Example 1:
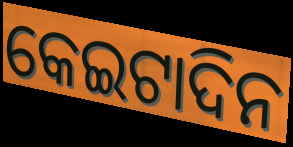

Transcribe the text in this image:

କେଇଟାଦିନ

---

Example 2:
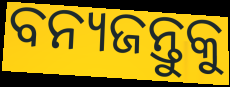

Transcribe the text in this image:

ବନ୍ୟଜନ୍ତୁକୁ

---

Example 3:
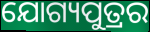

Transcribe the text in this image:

ଯୋଗ୍ୟପୁତ୍ରର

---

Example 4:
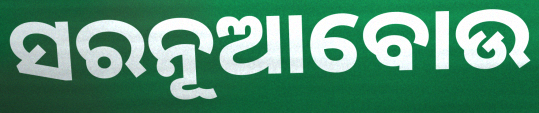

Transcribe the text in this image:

ସରନୂଆବୋଉ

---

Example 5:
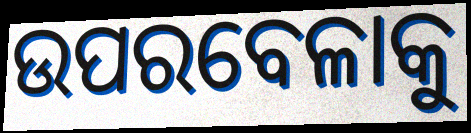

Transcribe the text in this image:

ଉପରବେଳାକୁ